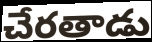
చేరతాడు